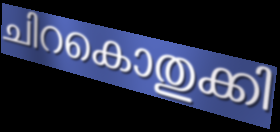
ചിറകൊതുക്കി